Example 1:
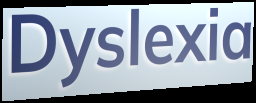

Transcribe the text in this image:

Dyslexia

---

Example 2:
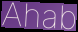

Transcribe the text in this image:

Ahab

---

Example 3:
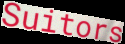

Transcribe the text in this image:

Suitors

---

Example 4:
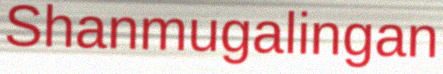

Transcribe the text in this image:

Shanmugalingan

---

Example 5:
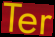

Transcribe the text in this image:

Ter